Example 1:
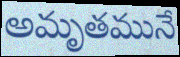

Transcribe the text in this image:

అమృతమునే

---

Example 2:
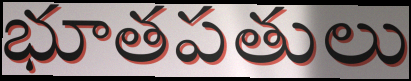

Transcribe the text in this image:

భూతపతులు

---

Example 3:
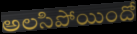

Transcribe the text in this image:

అలసిపోయిందో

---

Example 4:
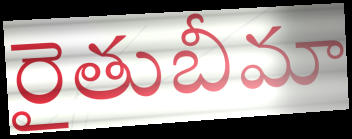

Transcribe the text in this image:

రైతుబీమా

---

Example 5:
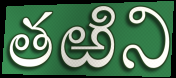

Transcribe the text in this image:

తఱిని